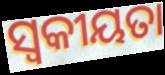
ସ୍ଵକୀୟତା